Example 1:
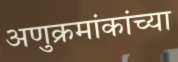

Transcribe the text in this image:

अणुक्रमांकांच्या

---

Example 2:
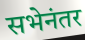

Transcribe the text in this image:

सभेनंतर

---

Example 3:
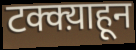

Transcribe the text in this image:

टक्क्य़ाहून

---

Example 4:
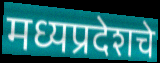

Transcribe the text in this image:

मध्यप्रदेशचे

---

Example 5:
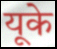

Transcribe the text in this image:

यूके